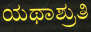
ಯಥಾಶ್ರುತಿ